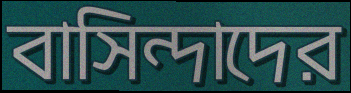
বাসিন্দাদের